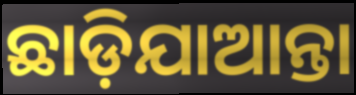
ଛାଡ଼ିଯାଆନ୍ତା